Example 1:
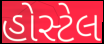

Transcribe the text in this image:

હોસ્ટેલ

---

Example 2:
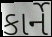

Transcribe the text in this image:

કાર્ને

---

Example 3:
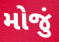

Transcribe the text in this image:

મોજું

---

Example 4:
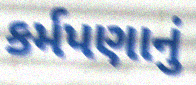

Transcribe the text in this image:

કર્મપણાનું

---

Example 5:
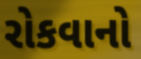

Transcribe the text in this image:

રોકવાનો